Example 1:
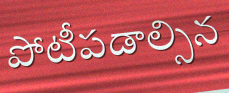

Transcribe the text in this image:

పోటీపడాల్సిన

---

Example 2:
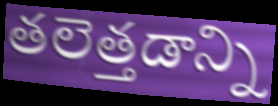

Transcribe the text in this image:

తలెత్తడాన్ని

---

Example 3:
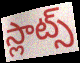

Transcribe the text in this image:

స్లాట్స్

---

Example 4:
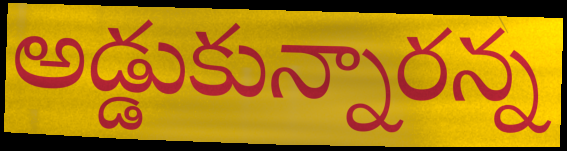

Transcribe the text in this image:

అడ్డుకున్నారన్న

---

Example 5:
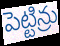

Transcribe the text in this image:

పెట్టిన్రు